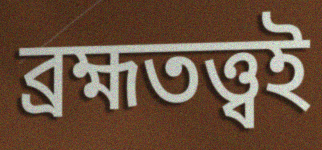
ব্রহ্মতত্ত্বই